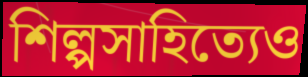
শিল্পসাহিত্যেও